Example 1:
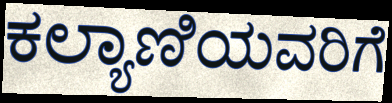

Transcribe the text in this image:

ಕಲ್ಯಾಣಿಯವರಿಗೆ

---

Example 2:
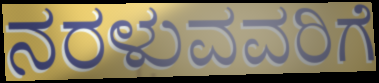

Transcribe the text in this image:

ನರಳುವವರಿಗೆ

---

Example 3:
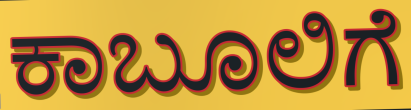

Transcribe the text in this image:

ಕಾಬೂಲಿಗೆ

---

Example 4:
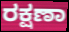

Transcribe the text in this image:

ರಕ್ಷಣಾ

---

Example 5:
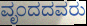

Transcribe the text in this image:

ವೃಂದದವರು